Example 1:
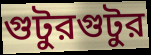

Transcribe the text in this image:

গুটুরগুটুর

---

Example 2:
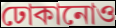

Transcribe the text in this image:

ঢোকানোও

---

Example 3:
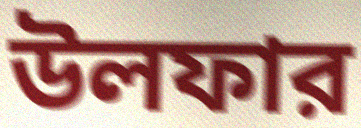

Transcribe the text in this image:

উলফার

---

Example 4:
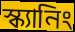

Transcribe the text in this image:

স্ক্যানিং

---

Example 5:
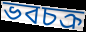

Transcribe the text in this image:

ভবচক্র